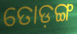
ତୋଡ଼ଙ୍ଗ